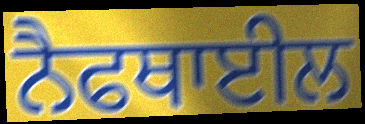
ਨੈਫਥਾਈਲ